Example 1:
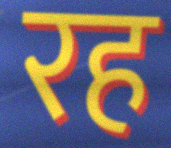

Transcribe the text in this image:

रह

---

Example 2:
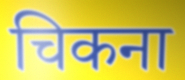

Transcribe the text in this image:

चिकना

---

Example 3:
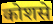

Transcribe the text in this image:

कोशसे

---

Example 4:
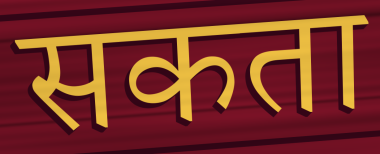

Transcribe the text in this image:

सकता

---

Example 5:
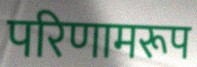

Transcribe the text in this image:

परिणामरूप